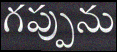
గప్పును